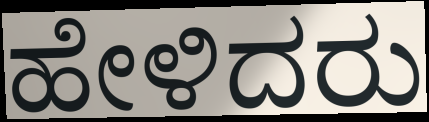
ಹೇಳಿದರು